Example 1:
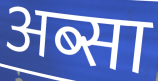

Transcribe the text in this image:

अब्सा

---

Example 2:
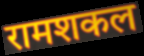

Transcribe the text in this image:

रामशकल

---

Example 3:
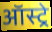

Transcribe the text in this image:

ऑस्ट्रे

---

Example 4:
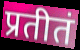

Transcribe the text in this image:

प्रतीतं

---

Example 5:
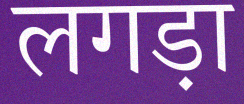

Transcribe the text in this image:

लगड़ा